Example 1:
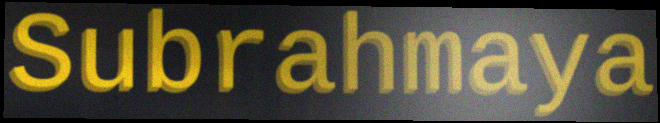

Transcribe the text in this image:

Subrahmaya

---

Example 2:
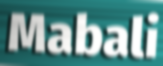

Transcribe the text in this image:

Mabali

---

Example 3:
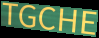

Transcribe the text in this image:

TGCHE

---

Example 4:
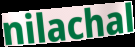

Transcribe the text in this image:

nilachal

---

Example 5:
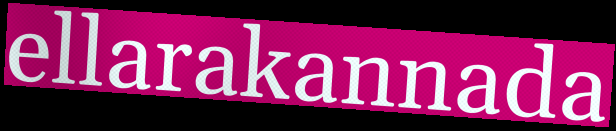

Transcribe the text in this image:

ellarakannada